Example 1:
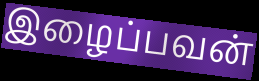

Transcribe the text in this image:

இழைப்பவன்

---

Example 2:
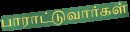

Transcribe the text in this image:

பாராட்டுவார்கள்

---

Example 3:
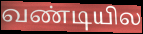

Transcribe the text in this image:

வண்டியில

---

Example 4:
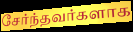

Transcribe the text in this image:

சேர்ந்தவர்களாக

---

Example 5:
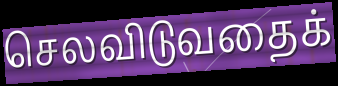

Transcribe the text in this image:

செலவிடுவதைக்